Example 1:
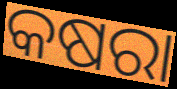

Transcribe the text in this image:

କଷରା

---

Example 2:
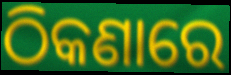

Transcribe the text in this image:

ଠିକଣାରେ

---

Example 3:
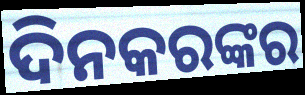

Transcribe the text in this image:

ଦିନକରଙ୍କର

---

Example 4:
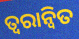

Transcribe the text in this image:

ତ୍ଵରାନ୍ବିତ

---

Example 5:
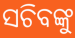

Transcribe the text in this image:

ସଚିବଙ୍କୁ